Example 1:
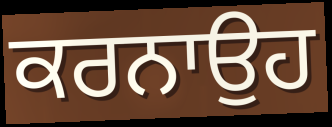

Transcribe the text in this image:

ਕਰਨਾਉਹ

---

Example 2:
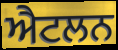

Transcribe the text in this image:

ਐਟਲਨ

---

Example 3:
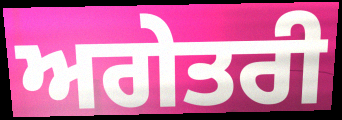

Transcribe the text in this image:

ਅਗੇਤਰੀ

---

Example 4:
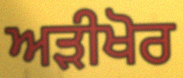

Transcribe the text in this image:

ਅੜੀਖੋਰ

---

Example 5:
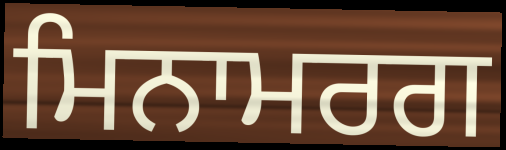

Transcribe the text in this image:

ਮਿਨਾਮਰਗ